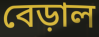
বেড়াল